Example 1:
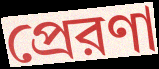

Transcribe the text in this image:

প্রেরণা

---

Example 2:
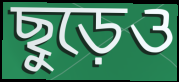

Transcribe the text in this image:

ছুড়েও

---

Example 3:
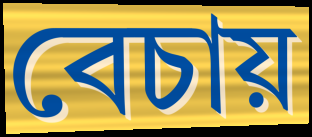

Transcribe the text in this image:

বেচায়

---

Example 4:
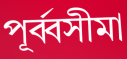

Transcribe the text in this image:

পূর্ব্বসীমা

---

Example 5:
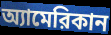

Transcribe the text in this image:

অ্যামেরিকান